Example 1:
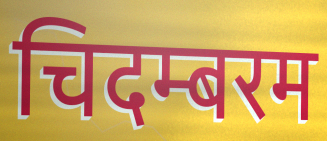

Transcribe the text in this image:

चिदम्बरम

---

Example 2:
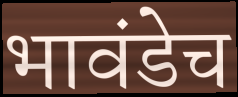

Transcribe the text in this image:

भावंडेच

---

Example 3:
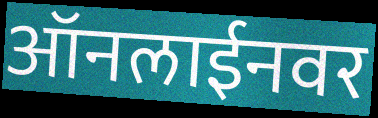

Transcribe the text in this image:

ऑनलाईनवर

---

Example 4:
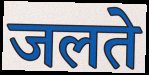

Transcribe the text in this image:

जलते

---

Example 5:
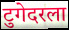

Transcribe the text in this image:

टुगेदरला